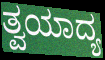
ತ್ವಯಾದ್ಯ